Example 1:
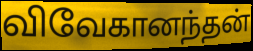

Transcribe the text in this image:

விவேகானந்தன்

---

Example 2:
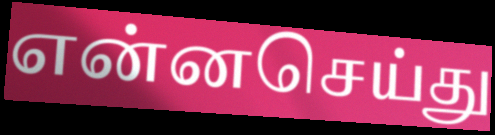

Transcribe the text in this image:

என்னசெய்து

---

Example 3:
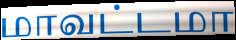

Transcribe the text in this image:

மாவட்டமா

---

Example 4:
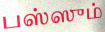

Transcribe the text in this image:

பஸ்ஸும்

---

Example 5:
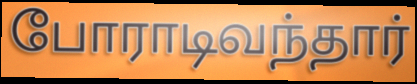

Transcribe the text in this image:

போராடிவந்தார்